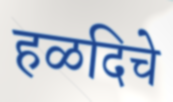
हळदिचे